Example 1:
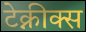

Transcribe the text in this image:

टेक्नीक्स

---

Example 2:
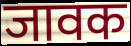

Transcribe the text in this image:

जावक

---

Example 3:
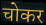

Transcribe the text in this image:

चोकर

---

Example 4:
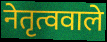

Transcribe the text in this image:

नेतृत्ववाले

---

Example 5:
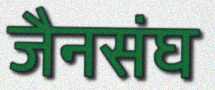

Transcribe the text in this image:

जैनसंघ